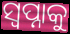
ସ୍ୱପ୍ନାକୁ